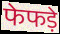
फेफड़े